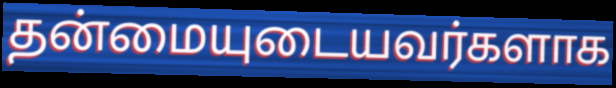
தன்மையுடையவர்களாக